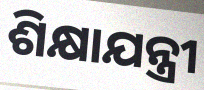
ଶିକ୍ଷାଯନ୍ତ୍ରୀ